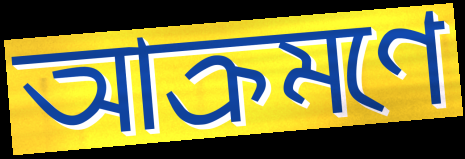
আক্রমণে